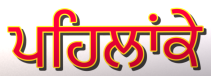
ਪਹਿਲਾਂਕੇ